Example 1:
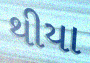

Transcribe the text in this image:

થીયા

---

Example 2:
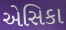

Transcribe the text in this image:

એસિકા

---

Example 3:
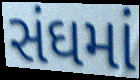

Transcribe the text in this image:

સંઘમાં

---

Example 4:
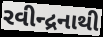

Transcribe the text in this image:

રવીન્દ્રનાથી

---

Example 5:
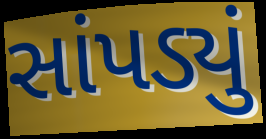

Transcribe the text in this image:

સાંપડ્યું